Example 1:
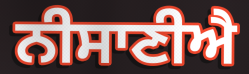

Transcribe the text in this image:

ਨੀਸਾਣੀਐ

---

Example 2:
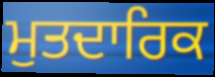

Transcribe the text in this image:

ਮੁਤਦਾਰਿਕ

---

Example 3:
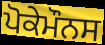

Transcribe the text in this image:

ਪੋਕੇਮੌਨਸ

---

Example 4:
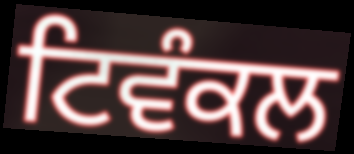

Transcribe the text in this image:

ਟਿਵੰਕਲ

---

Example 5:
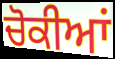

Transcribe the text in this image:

ਚੋਕੀਆਂ